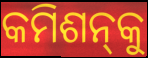
କମିଶନ୍‌କୁ